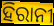
ହିରାନୀ